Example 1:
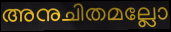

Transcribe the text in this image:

അനുചിതമല്ലോ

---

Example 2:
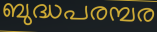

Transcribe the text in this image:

ബുദ്ധപരമ്പര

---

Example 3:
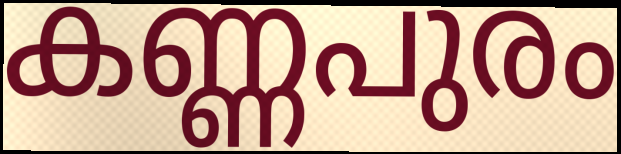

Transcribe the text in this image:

കണ്ണപുരം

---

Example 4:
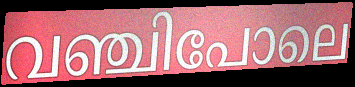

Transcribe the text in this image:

വഞ്ചിപോലെ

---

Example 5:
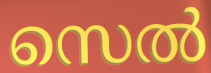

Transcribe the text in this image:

സെൽ